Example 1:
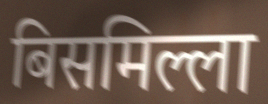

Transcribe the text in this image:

बिसमिल्ला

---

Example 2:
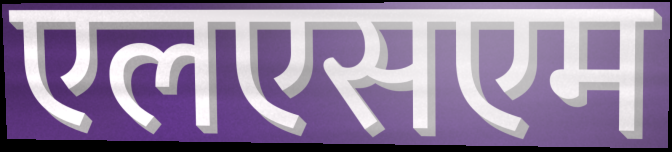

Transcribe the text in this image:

एलएसएम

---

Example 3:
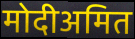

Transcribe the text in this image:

मोदीअमित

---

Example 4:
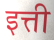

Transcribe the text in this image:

इत्ती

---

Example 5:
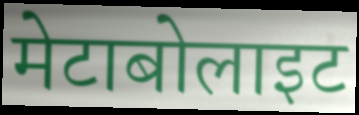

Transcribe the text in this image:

मेटाबोलाइट